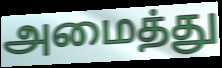
அமைத்து